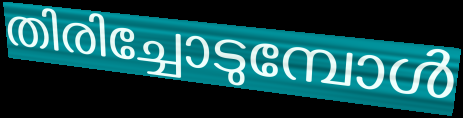
തിരിച്ചോടുമ്പോൾ